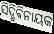
ସିଦ୍ଧିଵିନାୟକ